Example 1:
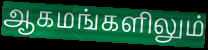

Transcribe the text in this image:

ஆகமங்களிலும்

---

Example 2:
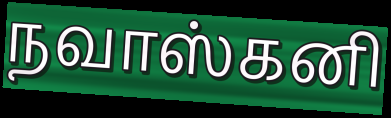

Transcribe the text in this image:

நவாஸ்கனி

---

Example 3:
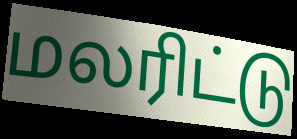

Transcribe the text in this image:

மலரிட்டு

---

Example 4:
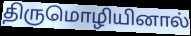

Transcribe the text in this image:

திருமொழியினால்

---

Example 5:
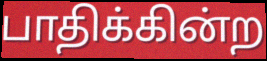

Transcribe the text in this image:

பாதிக்கின்ற